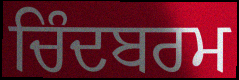
ਚਿੰਦਬਰਮ